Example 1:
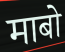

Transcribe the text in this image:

माबो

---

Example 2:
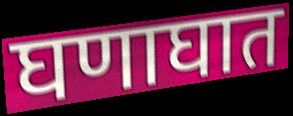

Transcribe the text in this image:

घणाघात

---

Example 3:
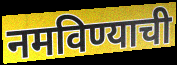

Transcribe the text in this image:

नमविण्याची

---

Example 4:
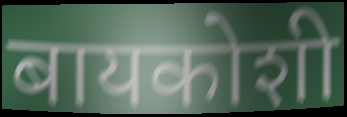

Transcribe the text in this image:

बायकोशी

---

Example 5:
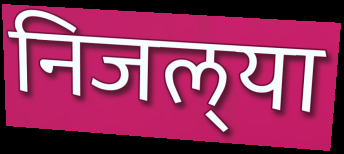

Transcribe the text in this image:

निजल्या